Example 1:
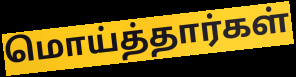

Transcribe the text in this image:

மொய்த்தார்கள்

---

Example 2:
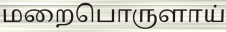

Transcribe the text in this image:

மறைபொருளாய்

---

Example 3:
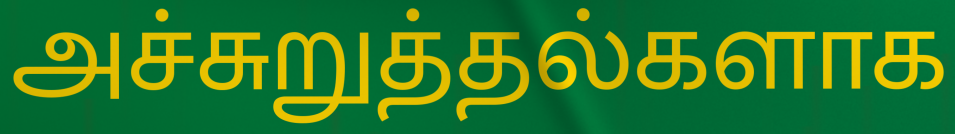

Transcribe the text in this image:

அச்சுறுத்தல்களாக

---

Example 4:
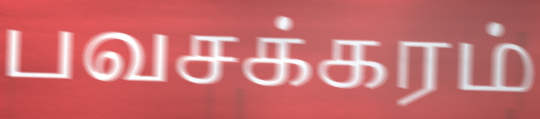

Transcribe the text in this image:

பவசக்கரம்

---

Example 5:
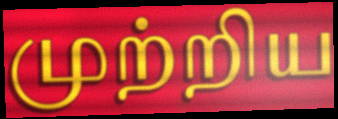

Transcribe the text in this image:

முற்றிய